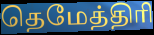
தெமேத்திரி